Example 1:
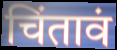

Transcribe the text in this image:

चिंतावं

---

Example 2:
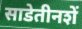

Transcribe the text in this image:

साडेतीनशें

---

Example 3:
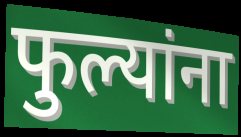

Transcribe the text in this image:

फुल्यांना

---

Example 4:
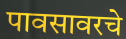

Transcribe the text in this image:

पावसावरचे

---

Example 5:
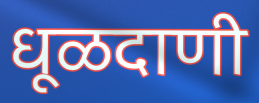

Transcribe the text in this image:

धूळदाणी